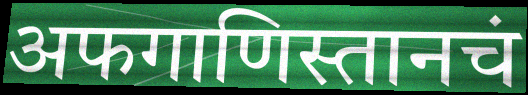
अफगाणिस्तानचं